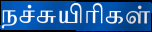
நச்சுயிரிகள்